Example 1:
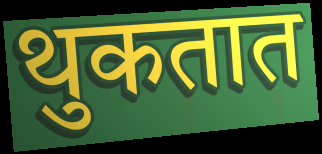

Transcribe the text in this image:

थुकतात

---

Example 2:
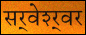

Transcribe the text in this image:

सर्वेश्र्वर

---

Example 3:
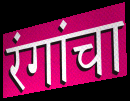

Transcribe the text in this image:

रंगांचा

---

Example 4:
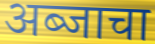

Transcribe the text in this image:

अब्जाचा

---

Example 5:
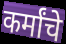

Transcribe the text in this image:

कर्मांचे